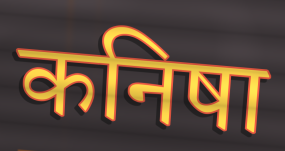
कनिषा